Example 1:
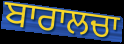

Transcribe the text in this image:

ਬਾਰਾਲਚਾ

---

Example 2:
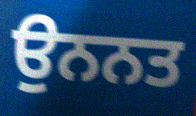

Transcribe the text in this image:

ਉਨਨਤ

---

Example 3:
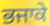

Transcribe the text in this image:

ਭਜਾਕੇ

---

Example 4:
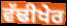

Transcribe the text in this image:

ਵੱਢੀਖੇਰ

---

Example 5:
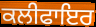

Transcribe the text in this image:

ਕਲੀਫਾਇਰ